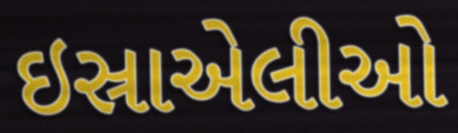
ઇસ્રાએલીઓ